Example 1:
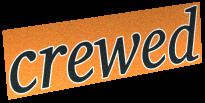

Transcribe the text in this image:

crewed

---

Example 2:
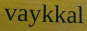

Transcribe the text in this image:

vaykkal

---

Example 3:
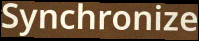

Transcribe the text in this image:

Synchronize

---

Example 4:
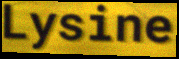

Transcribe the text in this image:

Lysine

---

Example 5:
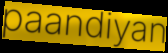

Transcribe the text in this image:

paandiyan